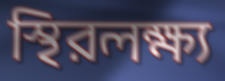
স্থিরলক্ষ্য